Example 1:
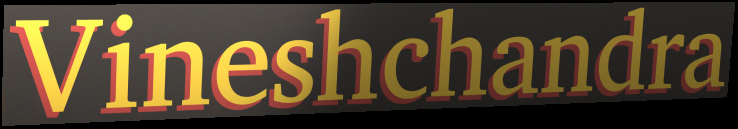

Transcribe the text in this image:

Vineshchandra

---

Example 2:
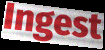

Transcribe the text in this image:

Ingest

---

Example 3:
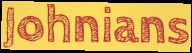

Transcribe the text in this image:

Johnians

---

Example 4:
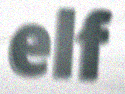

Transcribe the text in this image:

elf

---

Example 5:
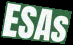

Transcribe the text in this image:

ESAs